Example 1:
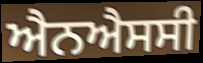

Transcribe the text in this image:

ਐਨਐਸਸੀ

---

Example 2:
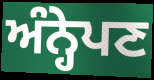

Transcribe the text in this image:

ਅੰਨ੍ਹੇਪਣ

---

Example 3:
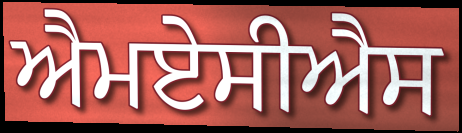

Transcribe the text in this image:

ਐਮਏਸੀਐਸ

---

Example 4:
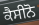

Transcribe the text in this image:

ਕੈਸੀਨੋ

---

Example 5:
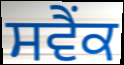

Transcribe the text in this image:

ਸਵੈਂਕ